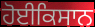
ਹੋਈਕਿਸਾਨ